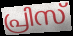
പ്രിസ്